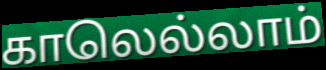
காலெல்லாம்